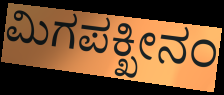
ಮಿಗಪಕ್ಖೀನಂ